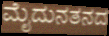
ಮೈದುನತನದ